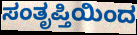
ಸಂತೃಪ್ತಿಯಿಂದ